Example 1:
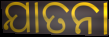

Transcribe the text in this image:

ଯାତନା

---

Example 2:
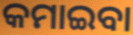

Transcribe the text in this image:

କମାଇବା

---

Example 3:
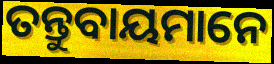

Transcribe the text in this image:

ତନ୍ତୁବାୟମାନେ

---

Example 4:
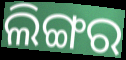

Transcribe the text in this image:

ଲିଙ୍ଗର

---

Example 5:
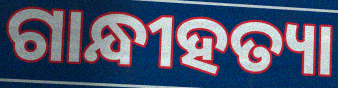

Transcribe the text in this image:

ଗାନ୍ଧୀହତ୍ୟା